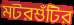
মটরশুঁটির